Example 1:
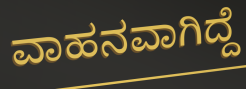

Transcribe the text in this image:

ವಾಹನವಾಗಿದ್ದೆ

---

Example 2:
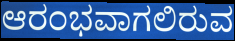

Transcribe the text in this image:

ಆರಂಭವಾಗಲಿರುವ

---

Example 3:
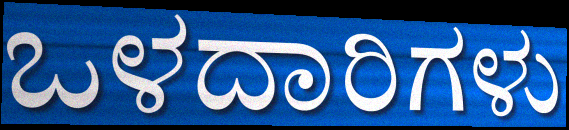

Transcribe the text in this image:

ಒಳದಾರಿಗಳು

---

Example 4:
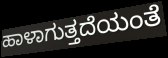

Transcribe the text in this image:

ಹಾಳಾಗುತ್ತದೆಯಂತೆ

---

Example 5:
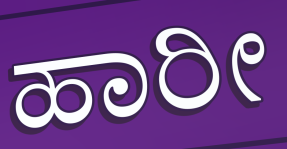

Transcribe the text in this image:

ಹಾರೀ